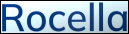
Rocella